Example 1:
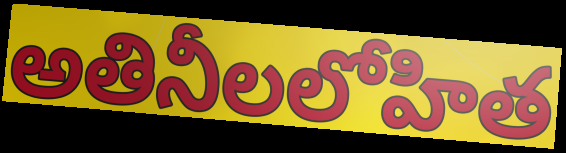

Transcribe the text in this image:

అతినీలలోహిత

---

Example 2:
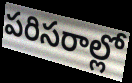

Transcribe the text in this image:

పరిసరాల్లో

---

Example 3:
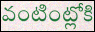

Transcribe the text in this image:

వంటింట్లోకి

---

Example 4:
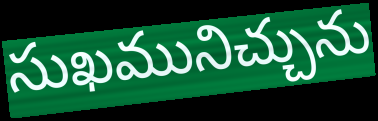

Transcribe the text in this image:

సుఖమునిచ్చును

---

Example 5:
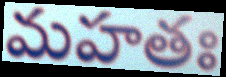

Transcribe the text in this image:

మహతః